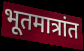
भूतमात्रांत